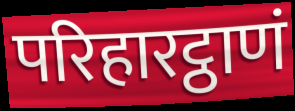
परिहारट्ठाणं